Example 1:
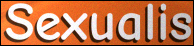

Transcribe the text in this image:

Sexualis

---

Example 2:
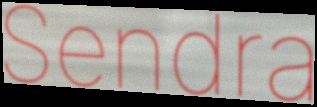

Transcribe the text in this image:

Sendra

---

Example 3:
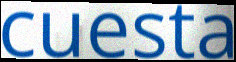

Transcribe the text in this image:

cuesta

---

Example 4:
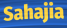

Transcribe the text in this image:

Sahajia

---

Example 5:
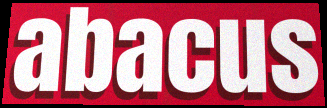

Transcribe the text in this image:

abacus